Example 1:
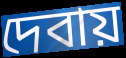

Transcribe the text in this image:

দেবায়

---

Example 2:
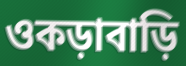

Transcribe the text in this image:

ওকড়াবাড়ি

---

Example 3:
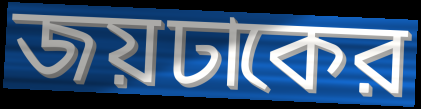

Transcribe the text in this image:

জয়ঢাকের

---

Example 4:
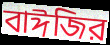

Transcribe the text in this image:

বাঈজির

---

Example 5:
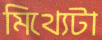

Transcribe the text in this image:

মিথ্যেটা